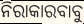
ନିରାକାରବାବୁ